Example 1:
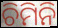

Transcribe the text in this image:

ଚିମିନି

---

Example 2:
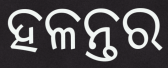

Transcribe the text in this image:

ହଳନ୍ତର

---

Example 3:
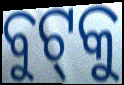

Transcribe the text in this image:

ବୁଟ୍‌କୁ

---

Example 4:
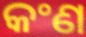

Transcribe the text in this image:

କଂଣ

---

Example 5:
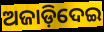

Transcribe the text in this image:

ଅଜାଡ଼ିଦେଇ